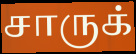
சாருக்